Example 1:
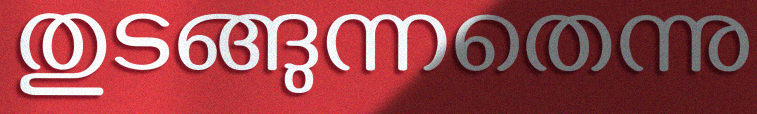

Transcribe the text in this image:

തുടങ്ങുന്നതെന്നു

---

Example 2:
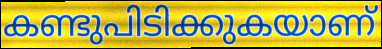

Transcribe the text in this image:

കണ്ടുപിടിക്കുകയാണ്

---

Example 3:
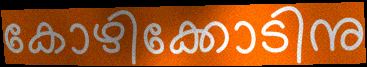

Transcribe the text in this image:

കോഴിക്കോടിനു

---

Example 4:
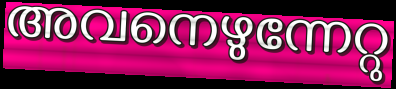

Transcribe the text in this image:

അവനെഴുന്നേറ്റു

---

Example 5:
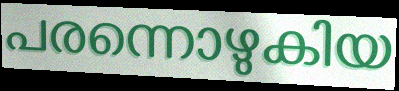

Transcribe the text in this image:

പരന്നൊഴുകിയ